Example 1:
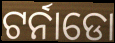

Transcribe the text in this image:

ଟର୍ନାଡୋ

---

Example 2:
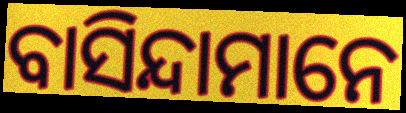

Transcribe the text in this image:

ବାସିନ୍ଦାମାନେ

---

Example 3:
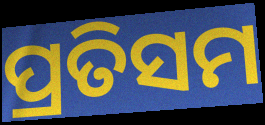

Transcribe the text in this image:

ପ୍ରତିସମ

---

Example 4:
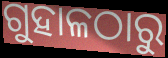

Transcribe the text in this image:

ଗୁହାଳଠାରୁ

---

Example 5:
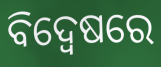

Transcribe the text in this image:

ବିଦ୍ୱେଷରେ